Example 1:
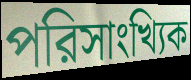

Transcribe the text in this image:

পরিসাংখ্যিক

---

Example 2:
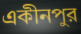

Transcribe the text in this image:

একীনপুর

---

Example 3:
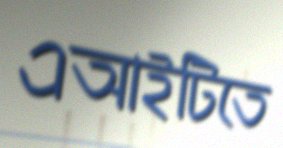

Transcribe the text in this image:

এআইটিতে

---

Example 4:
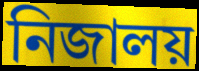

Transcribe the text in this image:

নিজালয়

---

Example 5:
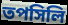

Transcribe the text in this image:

তপসিলি